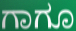
ಗಾಗೂ